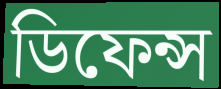
ডিফেন্স